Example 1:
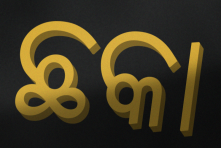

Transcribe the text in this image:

ଛକା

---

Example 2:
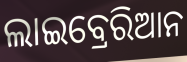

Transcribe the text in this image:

ଲାଇବ୍ରେରିଆନ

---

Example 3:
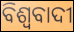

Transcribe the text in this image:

ବିଶ୍ବବାଦୀ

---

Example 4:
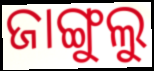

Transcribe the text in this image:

ଜାଙ୍ଗୁଲୁ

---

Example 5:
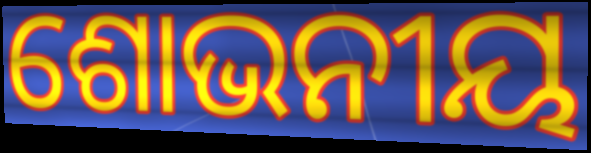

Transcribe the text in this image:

ଶୋଭନୀୟ